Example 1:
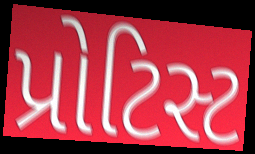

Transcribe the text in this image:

પ્રોટિસ્ટ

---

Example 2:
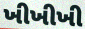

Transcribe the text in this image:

ખીખીખી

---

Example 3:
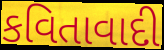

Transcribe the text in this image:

કવિતાવાદી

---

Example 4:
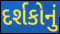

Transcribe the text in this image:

દર્શકોનું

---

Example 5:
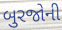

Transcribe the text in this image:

બુરજોની